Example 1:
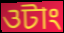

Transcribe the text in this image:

ওটাং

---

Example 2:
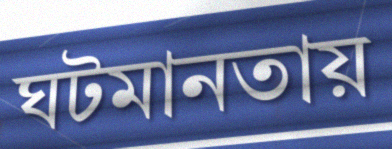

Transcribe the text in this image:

ঘটমানতায়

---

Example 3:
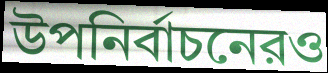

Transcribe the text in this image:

উপনির্বাচনেরও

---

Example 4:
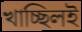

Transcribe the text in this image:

খাচ্ছিলই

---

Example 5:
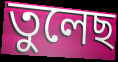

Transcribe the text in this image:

তুলেছ